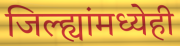
जिल्ह्यांमध्येही